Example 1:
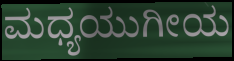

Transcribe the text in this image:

ಮಧ್ಯಯುಗೀಯ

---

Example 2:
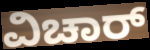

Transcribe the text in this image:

ವಿಚಾರ್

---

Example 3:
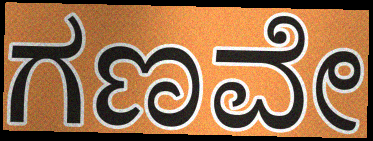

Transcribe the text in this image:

ಗಣವೇ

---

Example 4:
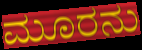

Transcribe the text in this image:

ಮೂರನು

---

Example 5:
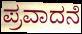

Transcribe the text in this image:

ಪ್ರವಾದನೆ